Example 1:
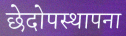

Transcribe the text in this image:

छेदोपस्थापना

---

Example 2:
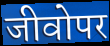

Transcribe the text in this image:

जीवोपर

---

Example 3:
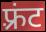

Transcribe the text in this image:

फ़्रंट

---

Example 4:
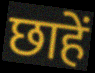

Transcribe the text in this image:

छाहें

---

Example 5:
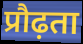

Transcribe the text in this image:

प्रौढ़ता